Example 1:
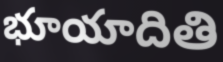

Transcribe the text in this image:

భూయాదితి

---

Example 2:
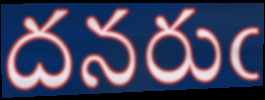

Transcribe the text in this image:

దనరుఁ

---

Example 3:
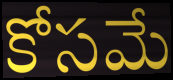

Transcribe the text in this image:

కోసమే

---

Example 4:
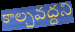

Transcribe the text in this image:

కాల్చవద్దని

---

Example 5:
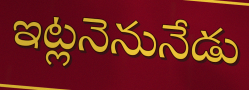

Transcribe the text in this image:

ఇట్లనెనునేడు